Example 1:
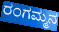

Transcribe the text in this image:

ರಂಗಮ್ಮನ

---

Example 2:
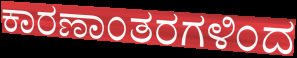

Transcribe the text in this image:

ಕಾರಣಾಂತರಗಳಿಂದ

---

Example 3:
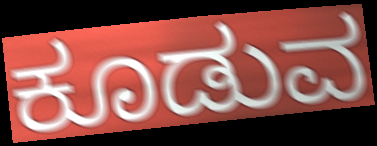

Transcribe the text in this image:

ಕೂಡುವ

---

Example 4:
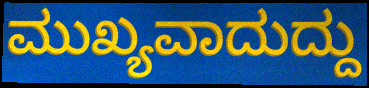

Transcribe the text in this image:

ಮುಖ್ಯವಾದುದ್ದು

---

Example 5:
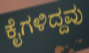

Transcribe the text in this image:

ಕೈಗಳಿದ್ದವು